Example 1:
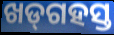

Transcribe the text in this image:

ଖଡ୍‌ଗହସ୍ତ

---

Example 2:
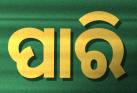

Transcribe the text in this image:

ପାରି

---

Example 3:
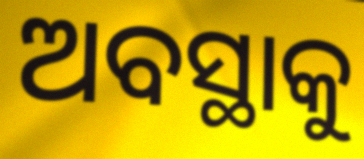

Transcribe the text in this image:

ଅବସ୍ଥାକୁ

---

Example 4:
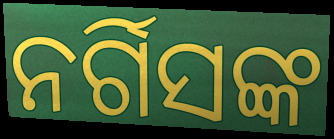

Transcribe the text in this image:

ନର୍ଗିସଙ୍କ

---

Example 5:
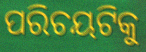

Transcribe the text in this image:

ପରିଚୟଟିକୁ